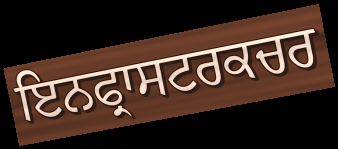
ਇਨਫ੍ਰਾਸਟਰਕਚਰ